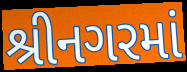
શ્રીનગરમાં